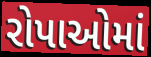
રોપાઓમાં